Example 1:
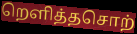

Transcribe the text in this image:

றெளித்தசொற்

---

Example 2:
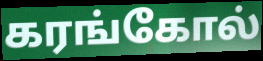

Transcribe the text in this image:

கரங்கோல்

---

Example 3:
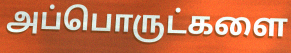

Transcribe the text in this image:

அப்பொருட்களை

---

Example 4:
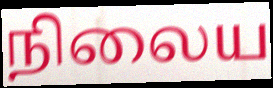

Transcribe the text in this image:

நிலைய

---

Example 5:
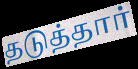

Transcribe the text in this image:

தடுத்தார்